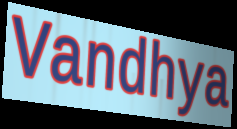
Vandhya